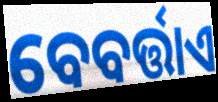
ବେବର୍ତ୍ତାଏ